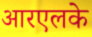
आरएलके